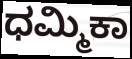
ಧಮ್ಮಿಕಾ